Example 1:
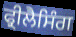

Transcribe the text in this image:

ਫ੍ਰੀਲੈਸਿੰਗ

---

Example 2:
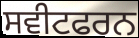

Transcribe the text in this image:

ਸਵੀਟਫਰਨ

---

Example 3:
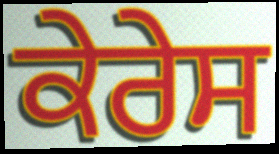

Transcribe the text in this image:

ਕੇਰੇਸ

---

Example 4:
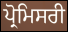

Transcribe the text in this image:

ਪ੍ਰੋਮਿਸਰੀ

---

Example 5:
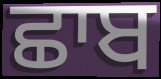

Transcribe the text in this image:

ਛਾਬ